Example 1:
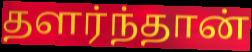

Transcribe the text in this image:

தளர்ந்தான்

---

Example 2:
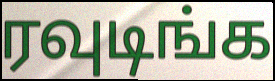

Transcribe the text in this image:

ரவுடிங்க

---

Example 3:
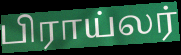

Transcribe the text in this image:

பிராய்லர்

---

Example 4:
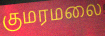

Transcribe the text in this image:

குமரமலை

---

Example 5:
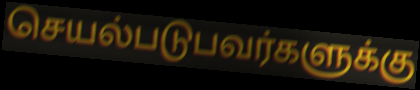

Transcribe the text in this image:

செயல்படுபவர்களுக்கு